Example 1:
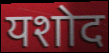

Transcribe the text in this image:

यशोद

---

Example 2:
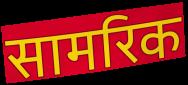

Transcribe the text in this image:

सामरिक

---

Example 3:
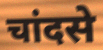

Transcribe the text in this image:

चांदसे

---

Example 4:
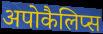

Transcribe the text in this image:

अपोकैलिप्स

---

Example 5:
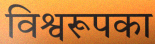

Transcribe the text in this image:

विश्वरूपका